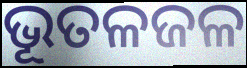
ଭୂତଳଜଳ